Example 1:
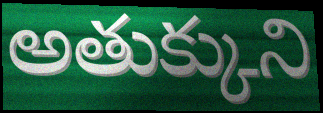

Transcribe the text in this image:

అతుక్కుని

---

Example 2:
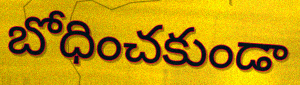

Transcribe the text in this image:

బోధించకుండా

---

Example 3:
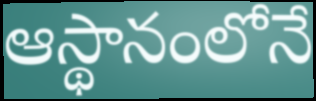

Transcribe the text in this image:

ఆస్థానంలోనే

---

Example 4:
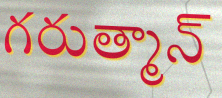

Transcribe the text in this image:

గరుత్మాన్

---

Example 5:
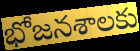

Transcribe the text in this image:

భోజనశాలకు